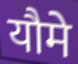
यौमे